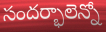
సందర్భాలెన్నో